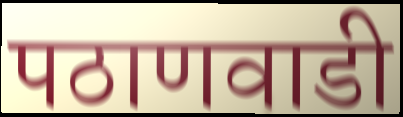
पठाणवाडी